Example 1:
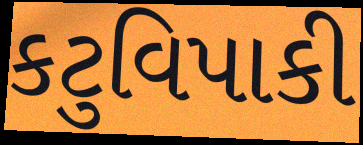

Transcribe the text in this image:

કટુવિપાકી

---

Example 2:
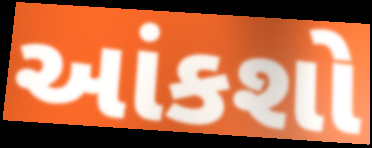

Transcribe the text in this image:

આંકશો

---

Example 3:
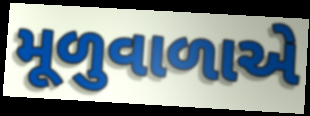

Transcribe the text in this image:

મૂળુવાળાએ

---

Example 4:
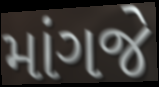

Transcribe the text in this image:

માંગજે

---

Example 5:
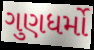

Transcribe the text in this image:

ગુણધર્મો